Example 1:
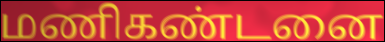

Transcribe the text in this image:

மணிகண்டனை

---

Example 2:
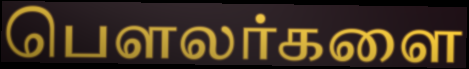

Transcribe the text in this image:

பௌலர்களை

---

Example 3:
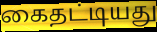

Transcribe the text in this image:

கைதட்டியது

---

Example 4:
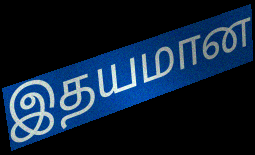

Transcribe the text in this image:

இதயமான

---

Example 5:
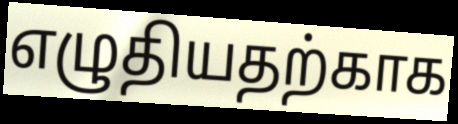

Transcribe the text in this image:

எழுதியதற்காக